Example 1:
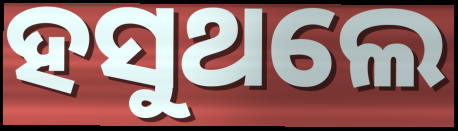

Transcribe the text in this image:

ହସୁଥଲେ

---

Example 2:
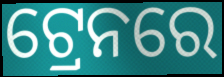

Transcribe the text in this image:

ଟ୍ରେନରେ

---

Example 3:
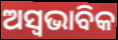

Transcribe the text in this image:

ଅସ୍ୱଭାବିକ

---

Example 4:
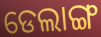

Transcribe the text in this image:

ଡେଲାଙ୍ଗ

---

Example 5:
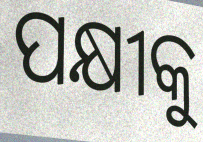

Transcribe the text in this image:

ପକ୍ଷୀକୁ